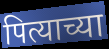
पित्याच्या